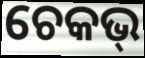
ଚେକଭ୍